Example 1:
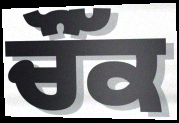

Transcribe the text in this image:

ਚੌੱਕ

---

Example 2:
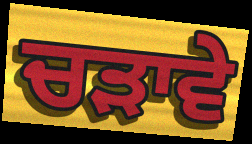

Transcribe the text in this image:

ਚੜਾਵੇ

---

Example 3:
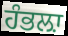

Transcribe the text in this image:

ਹੰਭਲ਼ਾ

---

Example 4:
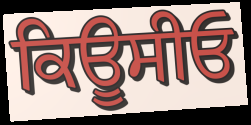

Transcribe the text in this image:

ਕਿਊਸੀਓ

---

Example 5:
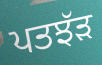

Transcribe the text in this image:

ਪਤਝੱੜ